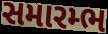
સમારમ્ભ